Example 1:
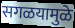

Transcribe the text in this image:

सगळयामुळे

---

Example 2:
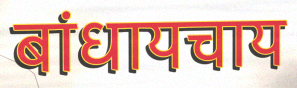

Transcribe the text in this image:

बांधायचाय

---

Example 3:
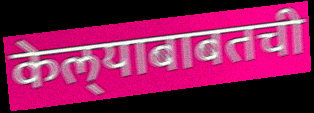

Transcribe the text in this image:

केल्याबाबतची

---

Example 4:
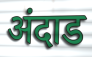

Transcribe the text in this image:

अंदाड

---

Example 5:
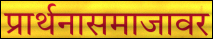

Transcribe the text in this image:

प्रार्थनासमाजावर